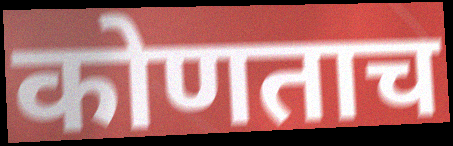
कोणताच